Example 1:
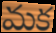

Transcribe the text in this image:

మక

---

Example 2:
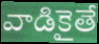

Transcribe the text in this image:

వాడికైతే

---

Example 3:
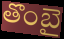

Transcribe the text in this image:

తొంబై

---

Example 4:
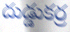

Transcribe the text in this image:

దుడ్డుకర్ర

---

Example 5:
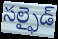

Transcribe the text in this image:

సల్ఫైడ్